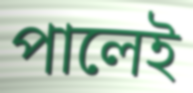
পালেই